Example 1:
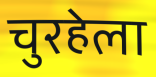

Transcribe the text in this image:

चुरहेला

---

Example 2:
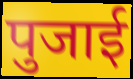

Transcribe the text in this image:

पुजाई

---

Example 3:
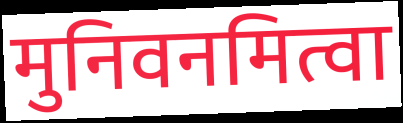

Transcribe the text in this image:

मुनिवनमित्वा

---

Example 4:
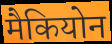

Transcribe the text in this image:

मैकियोन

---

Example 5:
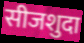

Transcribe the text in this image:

सीजशुदा